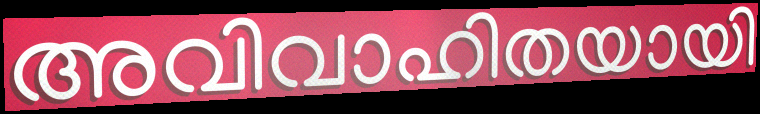
അവിവാഹിതയായി